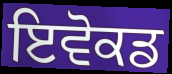
ਇਵੋਕਡ